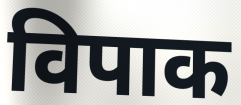
विपाक